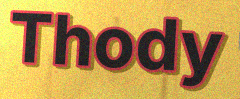
Thody